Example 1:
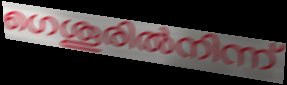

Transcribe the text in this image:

ഗെശൂരിൽനിന്ന്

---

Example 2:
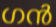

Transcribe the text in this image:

ഗൻ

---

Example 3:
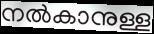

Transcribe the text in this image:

നൽകാനുള്ള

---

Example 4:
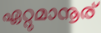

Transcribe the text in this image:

ഏറ്റുമാനൂര്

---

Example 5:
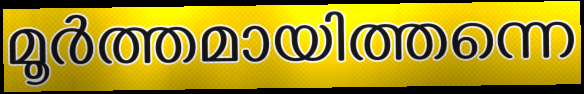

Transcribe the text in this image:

മൂർത്തമായിത്തന്നെ